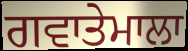
ਗਵਾਤੇਮਾਲਾ